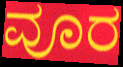
ವೂರ